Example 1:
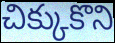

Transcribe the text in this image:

చిక్కుకొని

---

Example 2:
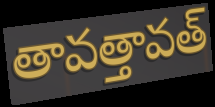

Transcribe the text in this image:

తావత్తావత్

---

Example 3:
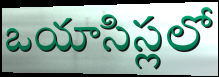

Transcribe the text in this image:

ఒయాసిస్లలో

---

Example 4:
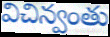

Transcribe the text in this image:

విచిన్వంతు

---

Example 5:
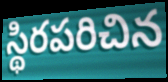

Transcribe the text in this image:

స్థిరపరిచిన